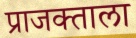
प्राजक्ताला